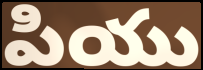
పియు